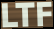
LTF